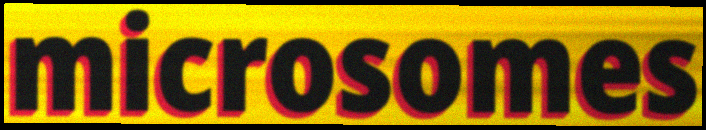
microsomes